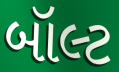
બૉલ્ટ